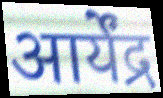
आर्येंद्र